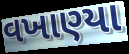
વખાણ્યા